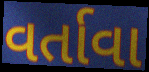
વર્તાવા